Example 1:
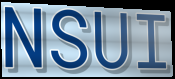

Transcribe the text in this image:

NSUI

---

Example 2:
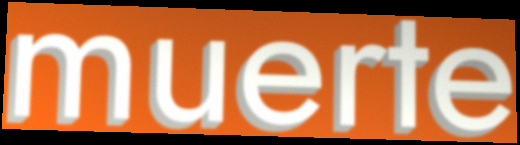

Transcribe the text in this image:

muerte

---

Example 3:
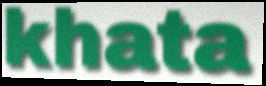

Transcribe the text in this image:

khata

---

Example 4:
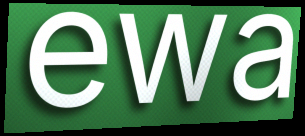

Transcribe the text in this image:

ewa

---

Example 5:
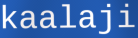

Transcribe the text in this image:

kaalaji